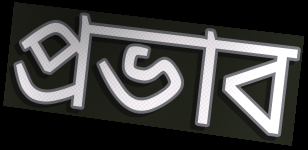
প্ৰভাব